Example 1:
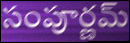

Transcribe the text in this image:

సంపూర్ణమ్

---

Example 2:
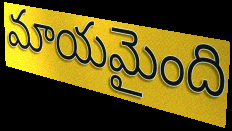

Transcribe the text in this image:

మాయమైంది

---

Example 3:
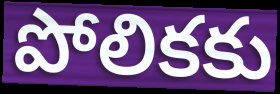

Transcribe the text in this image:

పోలికకు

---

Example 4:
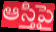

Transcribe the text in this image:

ఆస్తిపై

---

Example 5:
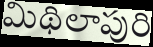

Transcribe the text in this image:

మిథిలాపురి